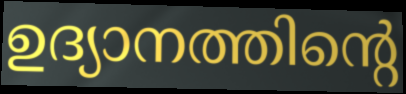
ഉദ്യാനത്തിന്റെ